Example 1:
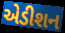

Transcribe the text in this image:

એડીશન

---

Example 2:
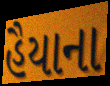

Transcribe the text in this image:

હૈયાના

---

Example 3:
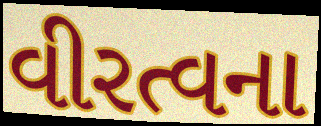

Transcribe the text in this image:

વીરત્વના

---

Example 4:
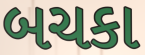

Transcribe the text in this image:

બચકા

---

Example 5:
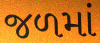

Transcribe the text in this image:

જળમાં